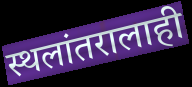
स्थलांतरालाही